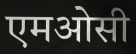
एमओसी